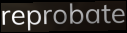
reprobate